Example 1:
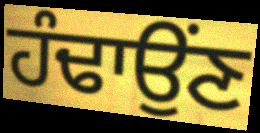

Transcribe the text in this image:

ਹੰਢਾਉਂਣ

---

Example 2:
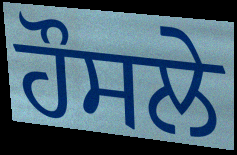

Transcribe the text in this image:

ਹੌਸਲੇ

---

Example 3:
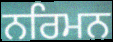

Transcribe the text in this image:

ਨਰਿਮਨ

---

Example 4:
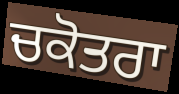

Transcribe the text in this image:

ਚਕੋਤਰਾ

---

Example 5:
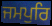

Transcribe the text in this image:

ਜਮਪੁਰਿ